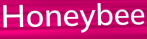
Honeybee